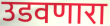
उडवणारा